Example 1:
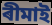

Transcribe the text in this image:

ৰীমাই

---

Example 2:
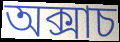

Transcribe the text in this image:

অক্সাচ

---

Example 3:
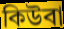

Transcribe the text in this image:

কিউবা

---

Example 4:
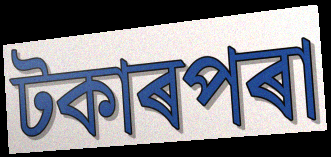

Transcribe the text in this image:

টকাৰপৰা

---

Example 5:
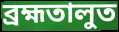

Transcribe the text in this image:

ব্ৰহ্মতালুত